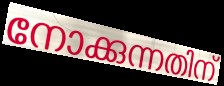
നോക്കുന്നതിന്